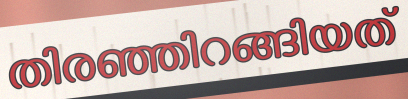
തിരഞ്ഞിറങ്ങിയത്